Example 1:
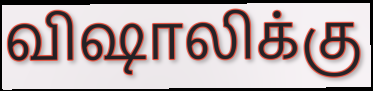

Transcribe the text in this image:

விஷாலிக்கு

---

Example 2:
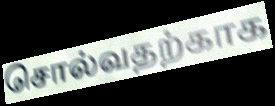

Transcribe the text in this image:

சொல்வதற்காக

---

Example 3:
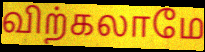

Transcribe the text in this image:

விற்கலாமே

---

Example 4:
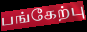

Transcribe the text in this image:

பங்கேற்பு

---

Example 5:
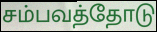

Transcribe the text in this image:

சம்பவத்தோடு